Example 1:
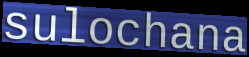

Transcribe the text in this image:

sulochana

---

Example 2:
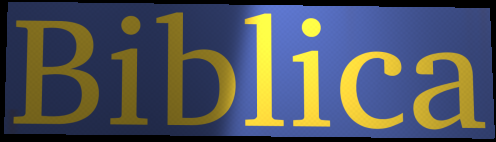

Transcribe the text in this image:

Biblica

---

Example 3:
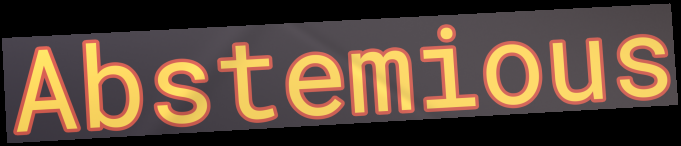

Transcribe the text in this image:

Abstemious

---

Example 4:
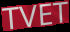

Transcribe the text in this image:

TVET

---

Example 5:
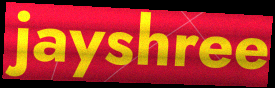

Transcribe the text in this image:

jayshree